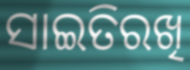
ସାଇତିରଖି